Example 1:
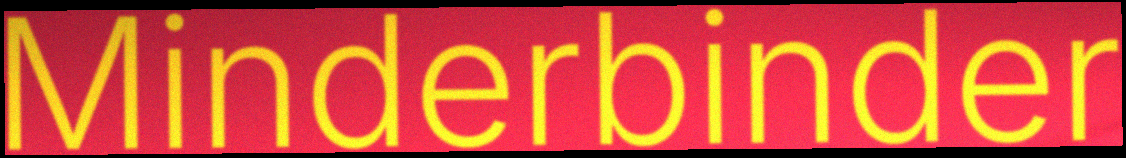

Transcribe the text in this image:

Minderbinder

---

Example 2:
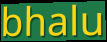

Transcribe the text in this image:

bhalu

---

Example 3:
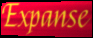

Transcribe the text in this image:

Expanse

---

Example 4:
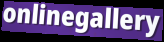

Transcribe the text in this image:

onlinegallery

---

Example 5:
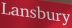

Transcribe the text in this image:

Lansbury